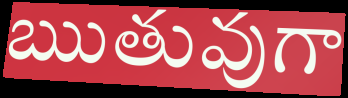
ఋతువుగా